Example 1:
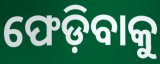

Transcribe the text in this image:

ଫେଡ଼ିବାକୁ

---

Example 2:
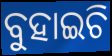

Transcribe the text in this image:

ବୁହାଇଚି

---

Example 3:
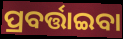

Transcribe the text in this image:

ପ୍ରବର୍ତ୍ତାଇବା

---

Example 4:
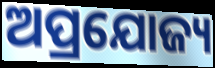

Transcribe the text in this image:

ଅପ୍ରଯୋଜ୍ୟ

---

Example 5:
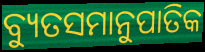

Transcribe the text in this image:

ବ୍ୟୁତସମାନୁପାତିକ